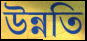
উন্নতি